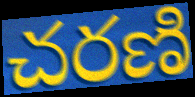
చరణి